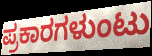
ಪ್ರಕಾರಗಳುಂಟು